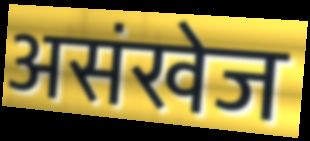
असंखेज